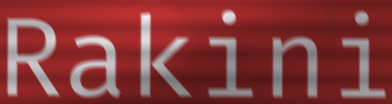
Rakini